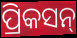
ପ୍ରିକସନ୍